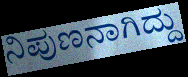
ನಿಪುಣನಾಗಿದ್ದು